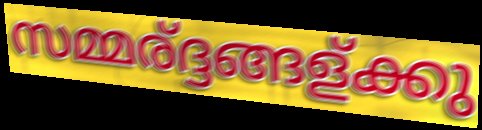
സമ്മര്ദ്ദങ്ങള്ക്കു